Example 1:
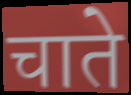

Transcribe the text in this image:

चाते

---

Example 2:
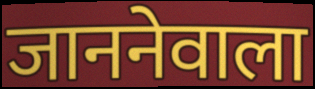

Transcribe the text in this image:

जाननेवाला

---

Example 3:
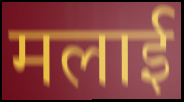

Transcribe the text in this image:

मलाई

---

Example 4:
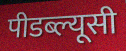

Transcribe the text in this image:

पीडब्ल्यूसी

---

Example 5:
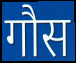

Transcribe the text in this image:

गौस